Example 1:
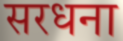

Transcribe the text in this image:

सरधना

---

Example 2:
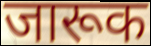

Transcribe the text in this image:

जारूक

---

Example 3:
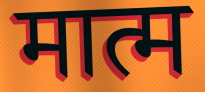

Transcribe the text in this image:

मात्म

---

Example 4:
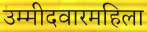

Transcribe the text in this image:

उम्मीदवारमहिला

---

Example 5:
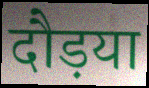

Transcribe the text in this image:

दौड़या